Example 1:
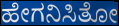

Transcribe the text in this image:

ಹೇಗನಿಸಿತೋ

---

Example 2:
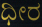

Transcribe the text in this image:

ಧೀರ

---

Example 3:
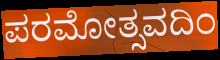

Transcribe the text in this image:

ಪರಮೋತ್ಸವದಿಂ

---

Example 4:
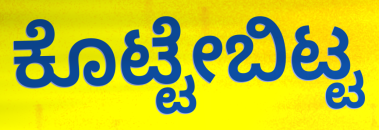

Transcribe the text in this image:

ಕೊಟ್ಟೇಬಿಟ್ಟ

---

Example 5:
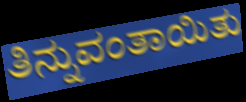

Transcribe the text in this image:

ತಿನ್ನುವಂತಾಯಿತು